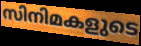
സിനിമകളുടെ